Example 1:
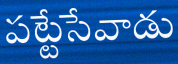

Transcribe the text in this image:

పట్టేసేవాడు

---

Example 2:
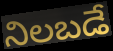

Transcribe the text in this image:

నిలబడే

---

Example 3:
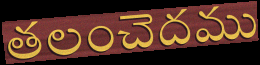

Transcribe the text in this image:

తలంచెదము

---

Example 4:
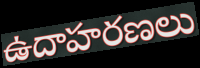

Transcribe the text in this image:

ఉదాహరణలు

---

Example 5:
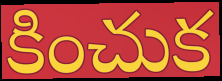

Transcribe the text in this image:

కించుక